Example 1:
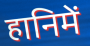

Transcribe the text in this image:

हानिमें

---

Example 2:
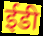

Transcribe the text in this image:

ईडी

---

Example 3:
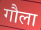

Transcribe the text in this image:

गौला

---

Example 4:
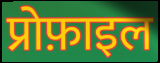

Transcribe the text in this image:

प्रोफ़ाइल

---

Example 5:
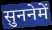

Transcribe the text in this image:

सुननेमें